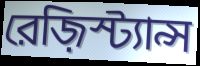
রেজ়িস্ট্যান্স